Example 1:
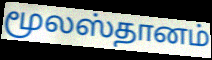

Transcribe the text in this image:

மூலஸ்தானம்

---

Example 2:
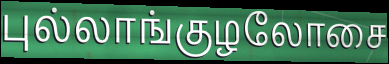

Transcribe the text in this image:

புல்லாங்குழலோசை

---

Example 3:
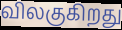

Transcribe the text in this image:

விலகுகிறது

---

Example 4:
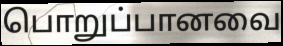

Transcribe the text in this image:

பொறுப்பானவை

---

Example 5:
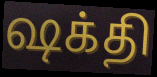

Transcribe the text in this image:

ஷக்தி